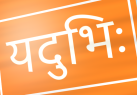
यदुभिः